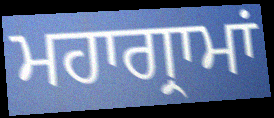
ਮਹਾਗ੍ਰਾਮਾਂ